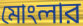
মোংলার